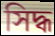
সিদ্ধ